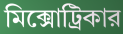
মিক্সোট্রিকার